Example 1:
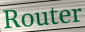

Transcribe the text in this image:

Router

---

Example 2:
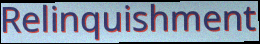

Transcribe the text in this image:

Relinquishment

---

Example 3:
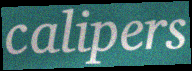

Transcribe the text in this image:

calipers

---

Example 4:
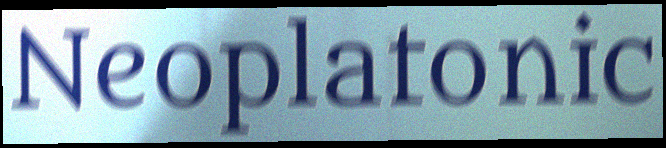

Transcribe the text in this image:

Neoplatonic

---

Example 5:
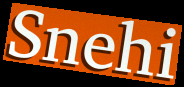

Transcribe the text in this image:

Snehi